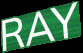
RAY